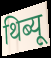
थिब्यू